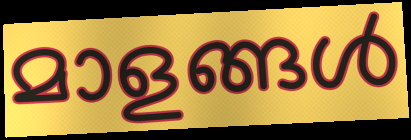
മാളങ്ങൾ